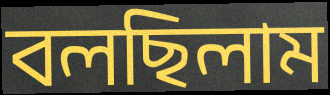
বলছিলাম